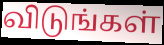
விடுங்கள்